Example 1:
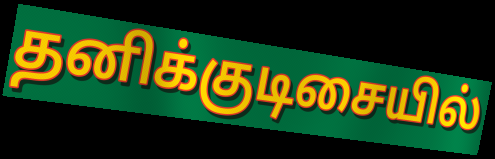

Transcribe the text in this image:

தனிக்குடிசையில்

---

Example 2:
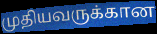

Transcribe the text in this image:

முதியவருக்கான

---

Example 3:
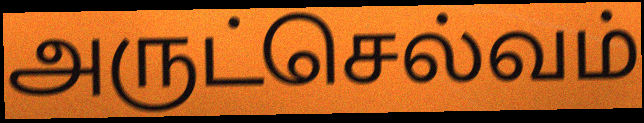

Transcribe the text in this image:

அருட்செல்வம்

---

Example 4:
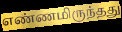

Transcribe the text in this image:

எண்ணமிருந்தது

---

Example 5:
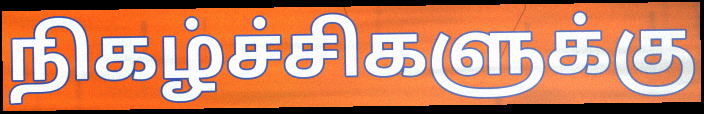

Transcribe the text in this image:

நிகழ்ச்சிகளுக்கு